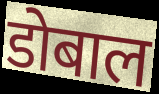
डोबाल